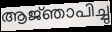
ആജ്‌ഞാപിച്ചു